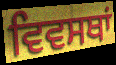
ਵਿਵਸਥਾਂ